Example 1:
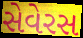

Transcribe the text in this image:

સેવેરસ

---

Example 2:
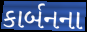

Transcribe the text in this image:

કાર્બનના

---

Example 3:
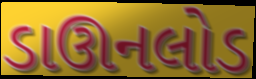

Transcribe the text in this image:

ડાઊનલોડ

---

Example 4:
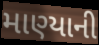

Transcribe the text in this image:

માણ્યાની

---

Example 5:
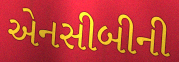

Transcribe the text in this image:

એનસીબીની